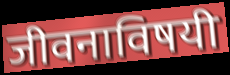
जीवनाविषयी